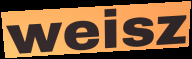
weisz